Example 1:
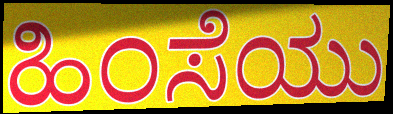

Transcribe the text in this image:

ಹಿಂಸೆಯು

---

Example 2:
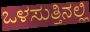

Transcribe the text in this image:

ಒಳಸುತ್ತಿನಲ್ಲಿ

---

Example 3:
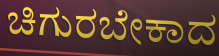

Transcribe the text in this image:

ಚಿಗುರಬೇಕಾದ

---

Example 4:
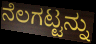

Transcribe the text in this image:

ನೆಲಗಟ್ಟನ್ನು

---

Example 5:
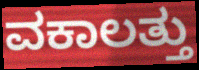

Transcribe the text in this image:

ವಕಾಲತ್ತು